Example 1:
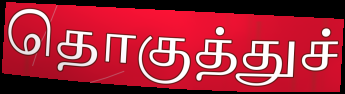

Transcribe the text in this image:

தொகுத்துச்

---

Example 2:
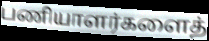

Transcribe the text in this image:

பணியாளர்களைத்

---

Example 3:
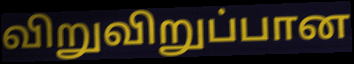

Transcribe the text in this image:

விறுவிறுப்பான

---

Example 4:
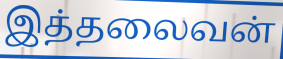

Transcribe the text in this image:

இத்தலைவன்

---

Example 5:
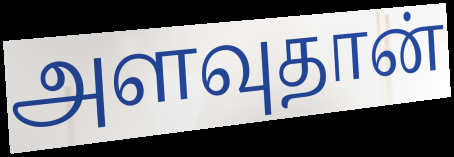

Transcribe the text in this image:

அளவுதான்